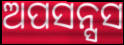
ଅପସନ୍ସସ